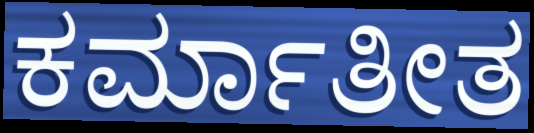
ಕರ್ಮಾತೀತ